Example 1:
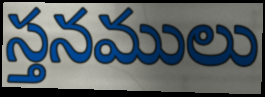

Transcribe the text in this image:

స్తనములు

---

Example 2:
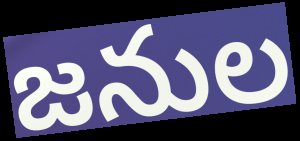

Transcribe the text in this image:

జనుల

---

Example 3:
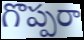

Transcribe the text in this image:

గొప్పరా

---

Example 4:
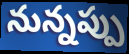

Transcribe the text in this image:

నున్నప్పు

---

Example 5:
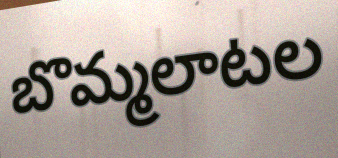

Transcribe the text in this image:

బొమ్మలాటల